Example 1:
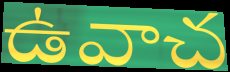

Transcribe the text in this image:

ఉవాచ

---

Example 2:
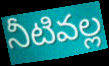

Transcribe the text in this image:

నీటివల్ల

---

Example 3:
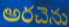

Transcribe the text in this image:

అరచెను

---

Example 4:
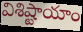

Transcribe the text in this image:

విశిష్టాయాం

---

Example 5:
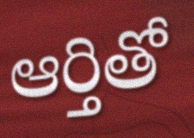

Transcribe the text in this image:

ఆర్తితో